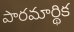
పారమార్థిక